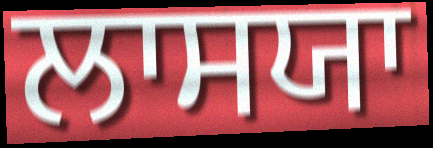
ਲਾਸਯਾ